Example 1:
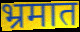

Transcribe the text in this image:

भ्रमात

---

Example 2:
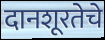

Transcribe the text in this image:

दानशूरतेचे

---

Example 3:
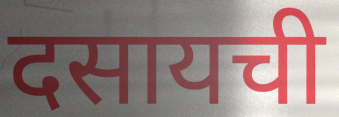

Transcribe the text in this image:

दसायची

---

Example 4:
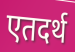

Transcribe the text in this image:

एतदर्थ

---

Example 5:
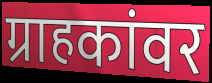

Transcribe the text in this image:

ग्राहकांवर